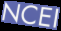
NCEI